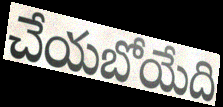
చేయబోయేది